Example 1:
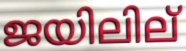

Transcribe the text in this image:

ജയിലില്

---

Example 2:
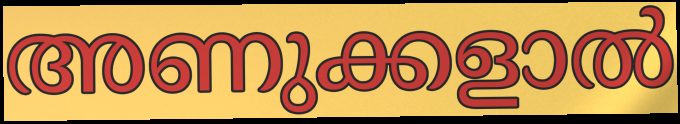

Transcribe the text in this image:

അണുക്കളാൽ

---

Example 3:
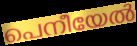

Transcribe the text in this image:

പെനീയേൽ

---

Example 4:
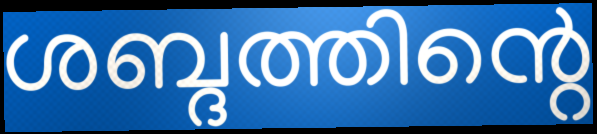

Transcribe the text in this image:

ശബ്ദത്തിന്റെ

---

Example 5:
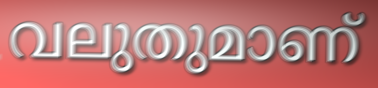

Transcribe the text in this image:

വലുതുമാണ്